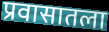
प्रवासातला